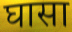
घासा